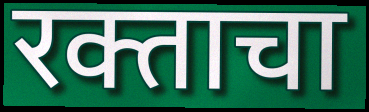
रक्‍ताचा